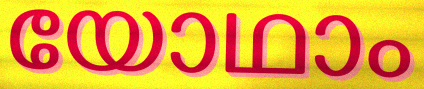
യോഥാം